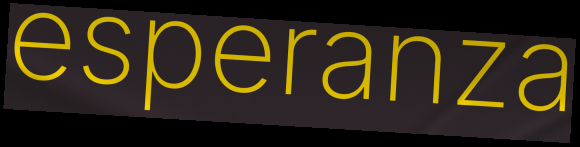
esperanza